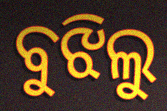
ବୁଝିଲୁ